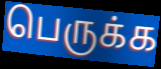
பெருக்க